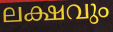
ലക്ഷവും